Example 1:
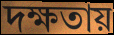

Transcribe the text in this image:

দক্ষতায়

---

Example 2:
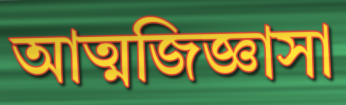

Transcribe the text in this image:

আত্মজিজ্ঞাসা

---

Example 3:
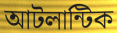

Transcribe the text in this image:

আটলান্টিক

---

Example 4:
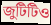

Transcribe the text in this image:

জুটিটিও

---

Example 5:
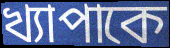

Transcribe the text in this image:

খ্যাপাকে